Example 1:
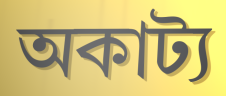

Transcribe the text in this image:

অকাট্য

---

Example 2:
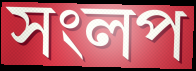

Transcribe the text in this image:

সংলপ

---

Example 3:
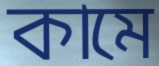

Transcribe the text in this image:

কামে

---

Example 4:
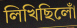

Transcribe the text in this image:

লিখিছিলোঁ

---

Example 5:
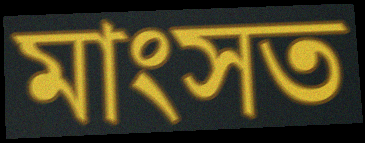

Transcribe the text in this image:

মাংসত